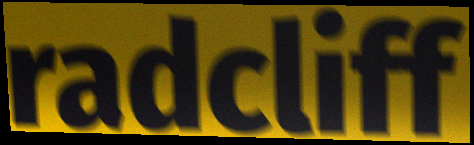
radcliff